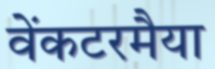
वेंकटरमैया